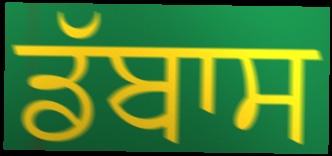
ਡੱਬਾਸ